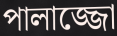
পালাজ্জো